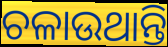
ଚଳାଉଥାନ୍ତି